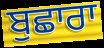
ਬੁਛਾਰਾ